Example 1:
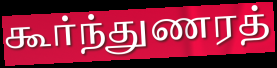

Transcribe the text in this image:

கூர்ந்துணரத்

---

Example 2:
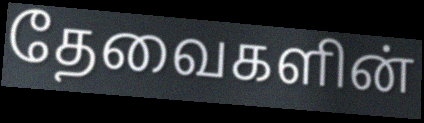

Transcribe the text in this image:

தேவைகளின்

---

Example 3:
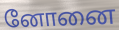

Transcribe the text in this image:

னோனை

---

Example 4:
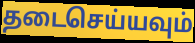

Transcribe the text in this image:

தடைசெய்யவும்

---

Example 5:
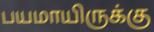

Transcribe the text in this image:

பயமாயிருக்கு